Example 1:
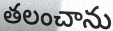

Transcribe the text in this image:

తలంచాను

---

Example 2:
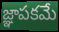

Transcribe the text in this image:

జ్ఞాపకమే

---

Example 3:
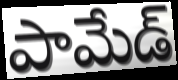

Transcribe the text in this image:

పామేడ్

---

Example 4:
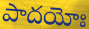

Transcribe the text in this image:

పాదయోః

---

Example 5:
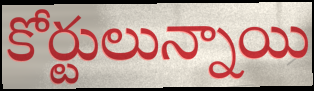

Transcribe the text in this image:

కోర్టులున్నాయి